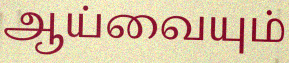
ஆய்வையும்